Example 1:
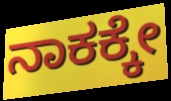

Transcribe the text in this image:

ನಾಕಕ್ಕೇ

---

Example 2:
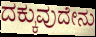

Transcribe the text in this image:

ದಕ್ಕುವುದೇನು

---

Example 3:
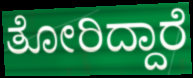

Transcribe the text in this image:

ತೋರಿದ್ದಾರೆ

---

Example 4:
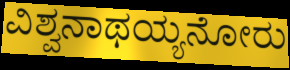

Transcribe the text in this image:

ವಿಶ್ವನಾಥಯ್ಯನೋರು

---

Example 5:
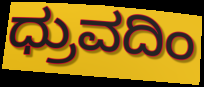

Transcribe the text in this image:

ಧ್ರುವದಿಂ